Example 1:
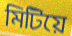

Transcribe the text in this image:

মিটিয়ে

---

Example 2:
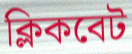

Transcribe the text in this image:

ক্লিকবেট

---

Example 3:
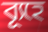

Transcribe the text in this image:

ব্যূহে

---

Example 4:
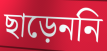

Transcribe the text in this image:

ছাড়েননি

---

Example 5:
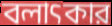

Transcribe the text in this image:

বলাৎকার